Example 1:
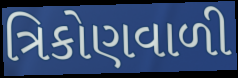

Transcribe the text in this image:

ત્રિકોણવાળી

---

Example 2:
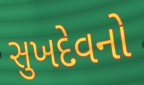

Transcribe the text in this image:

સુખદેવનો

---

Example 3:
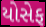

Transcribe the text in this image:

યોસેફ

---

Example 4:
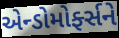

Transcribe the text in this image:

એન્ડોમોર્ફ્સને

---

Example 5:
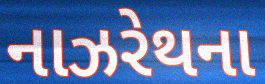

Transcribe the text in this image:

નાઝરેથના